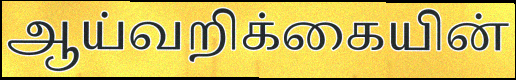
ஆய்வறிக்கையின்